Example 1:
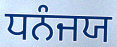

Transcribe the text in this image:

ਧਨੰਜਯ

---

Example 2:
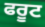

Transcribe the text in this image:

ਫਰੂਟ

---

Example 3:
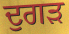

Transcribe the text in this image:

ਦੁਗੜ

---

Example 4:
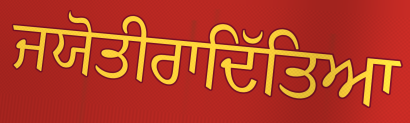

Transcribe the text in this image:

ਜਯੋਤੀਰਾਦਿੱਤਿਆ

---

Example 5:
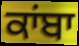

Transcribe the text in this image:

ਕਾਂਬਾ